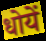
धोयें